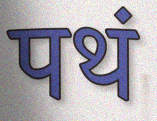
पथं